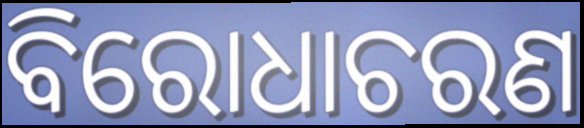
ବିରୋଧାଚରଣ